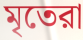
মৃতেরা